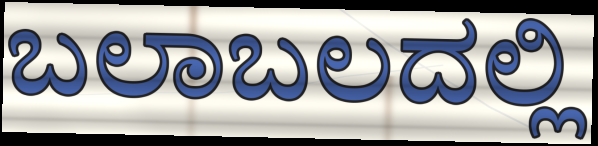
ಬಲಾಬಲದಲ್ಲಿ